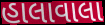
હાલાવાલા